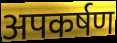
अपकर्षण